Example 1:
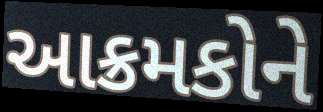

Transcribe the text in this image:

આક્રમકોને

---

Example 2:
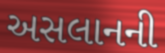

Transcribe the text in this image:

અસલાનની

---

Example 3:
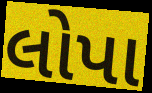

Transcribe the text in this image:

લોપા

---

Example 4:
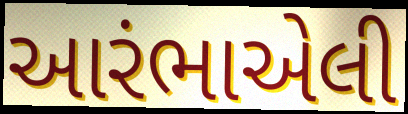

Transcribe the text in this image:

આરંભાએલી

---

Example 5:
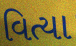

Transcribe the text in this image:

વિત્યા